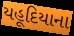
યહૂદિયાના